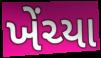
ખેંચ્યા